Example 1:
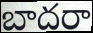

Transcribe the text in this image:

బాదరా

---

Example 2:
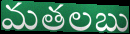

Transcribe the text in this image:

మతలబు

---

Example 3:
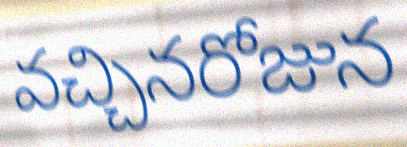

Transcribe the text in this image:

వచ్చినరోజున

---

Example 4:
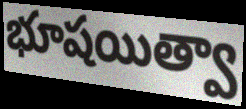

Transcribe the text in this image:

భూషయిత్వా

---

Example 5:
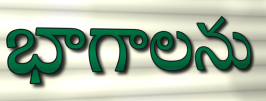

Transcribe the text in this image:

భాగాలను